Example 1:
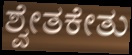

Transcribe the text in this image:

ಶ್ವೇತಕೇತು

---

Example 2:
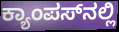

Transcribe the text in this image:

ಕ್ಯಾಂಪಸ್‌ನಲ್ಲಿ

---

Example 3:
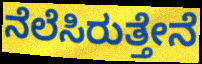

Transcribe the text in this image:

ನೆಲೆಸಿರುತ್ತೇನೆ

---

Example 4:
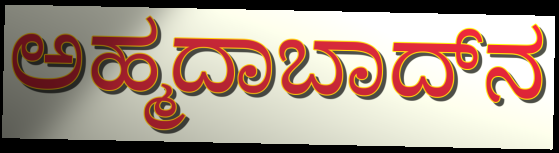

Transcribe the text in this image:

ಅಹ್ಮದಾಬಾದ್‌ನ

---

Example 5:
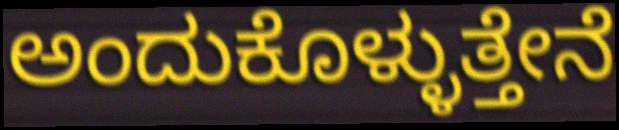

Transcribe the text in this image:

ಅಂದುಕೊಳ್ಳುತ್ತೇನೆ